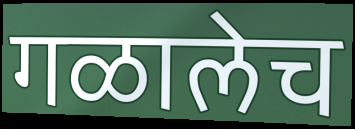
गळालेच